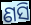
ଣସି